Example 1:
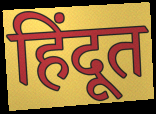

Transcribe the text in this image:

हिंदूत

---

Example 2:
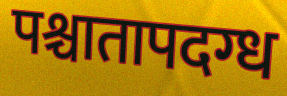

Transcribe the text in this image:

पश्चातापदग्ध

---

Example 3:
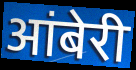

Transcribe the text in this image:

आंबेरी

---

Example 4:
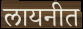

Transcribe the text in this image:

लायनीत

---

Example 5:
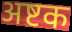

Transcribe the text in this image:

अष्टक